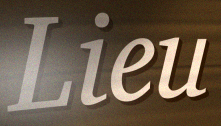
Lieu